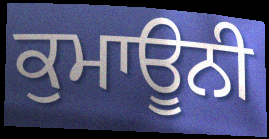
ਕੁਮਾਊਨੀ